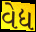
વેદ્ય